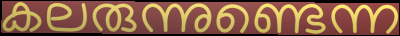
കലരുന്നുണ്ടെന്ന